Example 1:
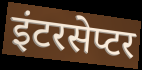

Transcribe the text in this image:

इंटरसेप्टर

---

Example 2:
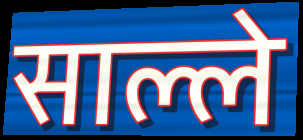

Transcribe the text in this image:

साल्ले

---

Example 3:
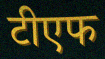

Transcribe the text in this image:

टीएफ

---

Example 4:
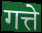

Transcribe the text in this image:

गत्ते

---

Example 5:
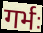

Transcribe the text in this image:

गर्भः